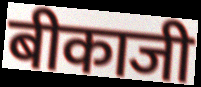
बीकाजी